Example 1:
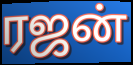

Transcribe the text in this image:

ரஜன்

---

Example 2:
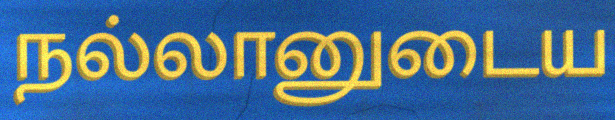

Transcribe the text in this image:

நல்லானுடைய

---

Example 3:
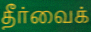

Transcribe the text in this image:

தீர்வைக்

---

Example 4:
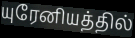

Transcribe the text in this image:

யுரேனியத்தில்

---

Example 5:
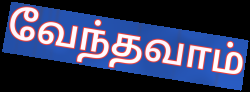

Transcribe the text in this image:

வேந்தவாம்